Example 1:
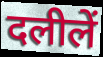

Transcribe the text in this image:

दलीलें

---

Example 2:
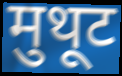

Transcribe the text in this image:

मुथूट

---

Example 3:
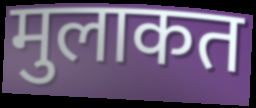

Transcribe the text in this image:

मुलाकत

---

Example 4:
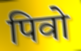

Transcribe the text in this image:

पिवो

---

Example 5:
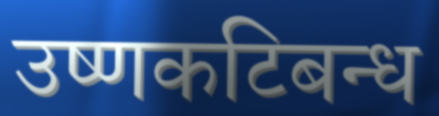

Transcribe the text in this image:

उष्णकटिबन्ध